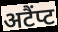
अटैंप्ट